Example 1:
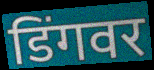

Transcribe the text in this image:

डिंगवर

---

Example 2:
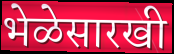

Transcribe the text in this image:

भेळेसारखी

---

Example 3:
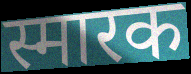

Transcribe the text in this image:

स्मारक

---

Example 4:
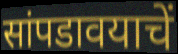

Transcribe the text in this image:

सांपडावयाचें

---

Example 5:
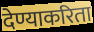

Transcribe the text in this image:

देण्याकरिता